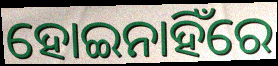
ହୋଇନାହିଁରେ